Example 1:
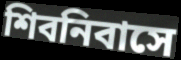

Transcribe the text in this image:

শিবনিবাসে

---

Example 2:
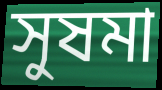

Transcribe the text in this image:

সুষমা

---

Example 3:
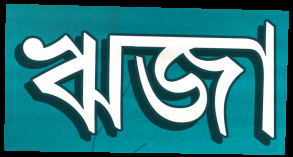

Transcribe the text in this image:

ঋজা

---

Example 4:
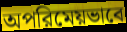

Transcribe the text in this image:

অপরিমেয়ভাবে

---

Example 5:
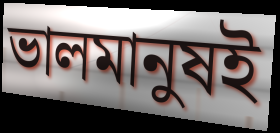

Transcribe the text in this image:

ভালমানুষই